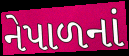
નેપાળનાં